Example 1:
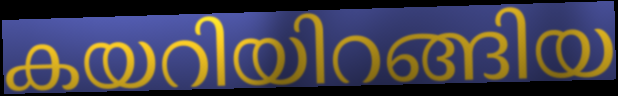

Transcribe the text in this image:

കയറിയിറങ്ങിയ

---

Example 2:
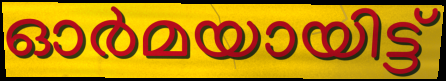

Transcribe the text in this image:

ഓർമയായിട്ട്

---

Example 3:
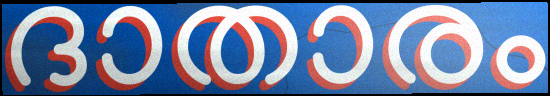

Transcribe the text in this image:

ദാതാരം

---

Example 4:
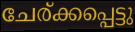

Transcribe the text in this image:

ചേര്ക്കപ്പെട്ടു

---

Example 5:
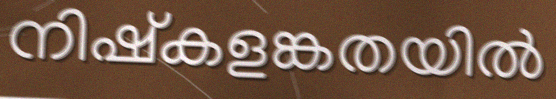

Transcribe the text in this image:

നിഷ്കളങ്കതയിൽ